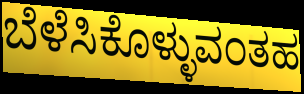
ಬೆಳೆಸಿಕೊಳ್ಳುವಂತಹ